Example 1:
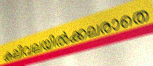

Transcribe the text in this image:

കലിവലയിൽക്കലരാതെ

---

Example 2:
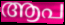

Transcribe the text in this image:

ആപ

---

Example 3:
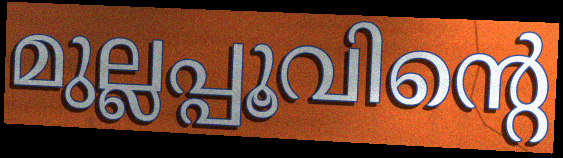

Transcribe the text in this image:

മുല്ലപ്പൂവിന്റെ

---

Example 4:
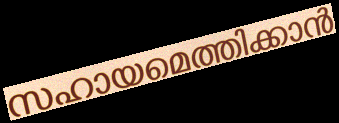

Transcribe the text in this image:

സഹായമെത്തിക്കാൻ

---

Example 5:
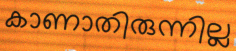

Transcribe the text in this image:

കാണാതിരുന്നില്ല